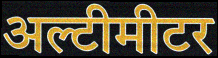
अल्टीमीटर